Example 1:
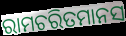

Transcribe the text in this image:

ରାମଚରିତମାନସ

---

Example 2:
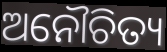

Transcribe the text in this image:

ଅନୌଚିତ୍ୟ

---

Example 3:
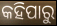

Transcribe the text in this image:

କହିପାରୁ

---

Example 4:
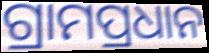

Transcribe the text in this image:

ଗ୍ରାମପ୍ରଧାନ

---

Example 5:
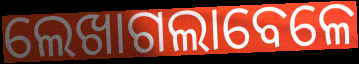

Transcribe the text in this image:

ଲେଖାଗଲାବେଳେ